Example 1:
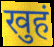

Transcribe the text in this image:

खुहं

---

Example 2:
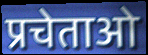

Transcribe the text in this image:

प्रचेताओ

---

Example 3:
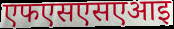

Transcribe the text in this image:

एफएसएसएआइ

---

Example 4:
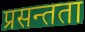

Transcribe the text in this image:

प्रसन्तता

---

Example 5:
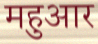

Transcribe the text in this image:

महुआर